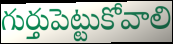
గుర్తుపెట్టుకోవాలి